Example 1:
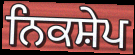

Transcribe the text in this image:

ਨਿਕਸ਼ੇਪ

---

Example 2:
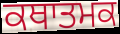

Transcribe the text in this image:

ਕਥਾਤਮਕ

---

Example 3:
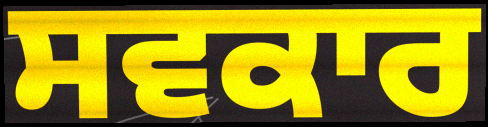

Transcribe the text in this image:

ਸਵਕਾਰ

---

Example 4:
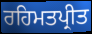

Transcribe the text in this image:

ਰਹਿਮਤਪ੍ਰੀਤ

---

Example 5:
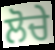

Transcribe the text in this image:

ਲੋਚੇ